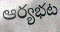
ఆర్యభట